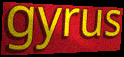
gyrus